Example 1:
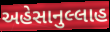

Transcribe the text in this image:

અહેસાનુલ્લાહ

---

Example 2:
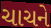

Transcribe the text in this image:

ચાચને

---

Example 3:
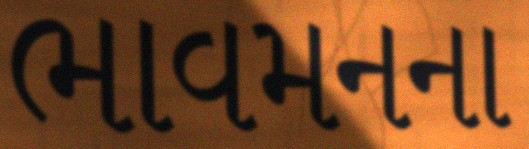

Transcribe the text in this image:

ભાવમનના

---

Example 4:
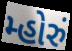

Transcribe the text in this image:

મ્હોરું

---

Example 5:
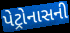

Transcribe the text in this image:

પેટ્રોનાસની